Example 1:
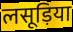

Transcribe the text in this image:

लसूड़िया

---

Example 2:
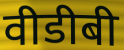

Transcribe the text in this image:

वीडीबी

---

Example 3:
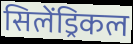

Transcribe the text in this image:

सिलेंड्रिकल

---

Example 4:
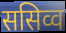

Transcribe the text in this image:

ससिव्व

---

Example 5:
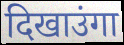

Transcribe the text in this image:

दिखाउंगा